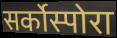
सर्कोस्पोरा